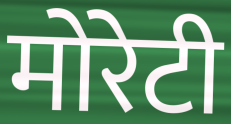
मोरेटी